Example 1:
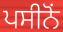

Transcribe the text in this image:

ਪਸੀਨੋਂ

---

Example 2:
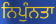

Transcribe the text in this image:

ਨਿਪੁੰਨਤਾ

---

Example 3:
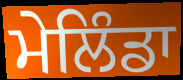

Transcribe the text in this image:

ਮੇਲਿੰਡਾ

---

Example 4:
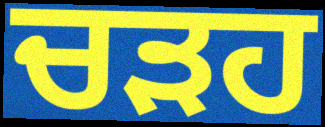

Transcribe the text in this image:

ਚੜਹ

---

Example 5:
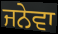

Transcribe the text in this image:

ਜਨੇਵਾ